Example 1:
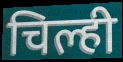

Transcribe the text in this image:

चिल्ही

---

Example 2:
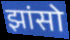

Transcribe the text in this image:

झांसो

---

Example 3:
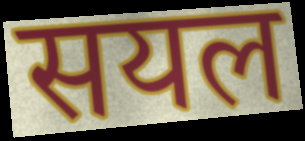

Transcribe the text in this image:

सयल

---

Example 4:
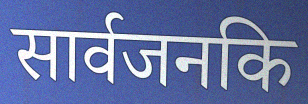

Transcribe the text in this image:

सार्वजनकि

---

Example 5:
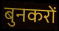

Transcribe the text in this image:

बुनकरों